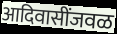
आदिवासींजवळ